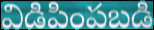
విడిపింపబడి